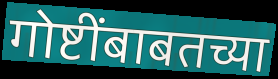
गोष्टींबाबतच्या